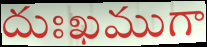
దుఃఖముగా